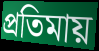
প্রতিমায়